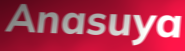
Anasuya